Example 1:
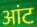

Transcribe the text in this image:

आंट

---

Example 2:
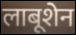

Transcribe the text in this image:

लाबूशेन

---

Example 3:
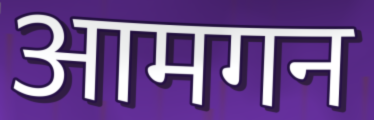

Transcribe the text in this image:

आमगन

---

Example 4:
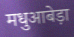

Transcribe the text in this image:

मधुआबेड़ा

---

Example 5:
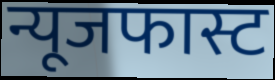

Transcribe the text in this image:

न्यूजफास्ट